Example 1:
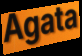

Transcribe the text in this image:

Agata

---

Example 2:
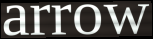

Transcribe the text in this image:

arrow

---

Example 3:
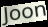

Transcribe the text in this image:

Joon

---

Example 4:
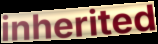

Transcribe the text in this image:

inherited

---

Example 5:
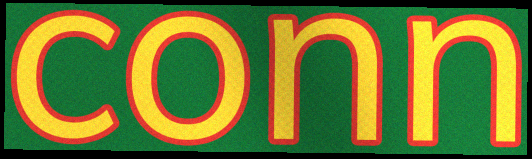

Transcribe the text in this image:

conn